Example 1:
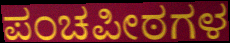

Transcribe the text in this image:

ಪಂಚಪೀಠಗಳ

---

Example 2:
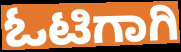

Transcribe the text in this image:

ಓಟಿಗಾಗಿ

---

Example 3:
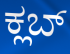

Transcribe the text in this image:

ಕ್ಲಬ್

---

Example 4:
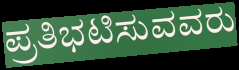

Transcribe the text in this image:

ಪ್ರತಿಭಟಿಸುವವರು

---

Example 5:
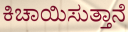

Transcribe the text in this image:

ಕಿಚಾಯಿಸುತ್ತಾನೆ